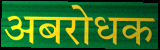
अबरोधक